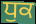
ਧੁਕ